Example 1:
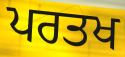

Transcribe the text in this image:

ਪਰਤਖ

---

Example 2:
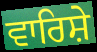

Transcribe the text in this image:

ਵਾਰਿਸ਼ੇ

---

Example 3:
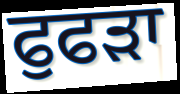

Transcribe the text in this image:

ਫੁਫੜਾ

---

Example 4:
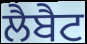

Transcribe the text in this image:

ਲੈਬੈਟ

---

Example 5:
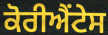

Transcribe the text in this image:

ਕੋਰੀਐਂਟੇਸ